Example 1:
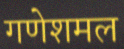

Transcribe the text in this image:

गणेशमल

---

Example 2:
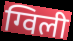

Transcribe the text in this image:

ग्विली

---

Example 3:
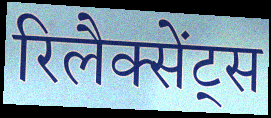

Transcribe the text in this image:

रिलैक्सेंट्स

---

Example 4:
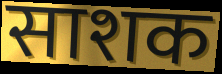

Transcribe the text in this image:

साशक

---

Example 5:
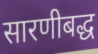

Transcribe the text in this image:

सारणीबद्ध